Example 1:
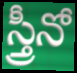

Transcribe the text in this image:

స్త్రీనో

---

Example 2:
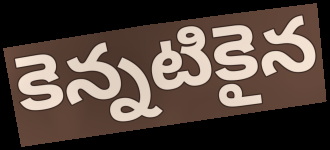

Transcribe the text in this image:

కెన్నటికైన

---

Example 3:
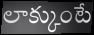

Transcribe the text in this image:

లాక్కుంటే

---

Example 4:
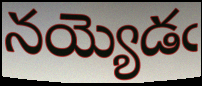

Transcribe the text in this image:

నయ్యెడఁ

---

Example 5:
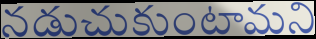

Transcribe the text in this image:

నడుచుకుంటామని